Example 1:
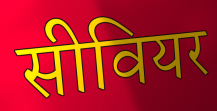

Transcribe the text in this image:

सीवियर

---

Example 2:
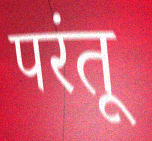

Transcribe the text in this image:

परंतू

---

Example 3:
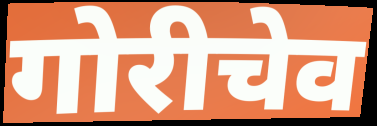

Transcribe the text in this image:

गोरीचेव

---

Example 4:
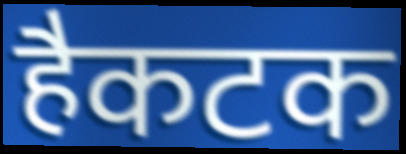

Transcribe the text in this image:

हैकटक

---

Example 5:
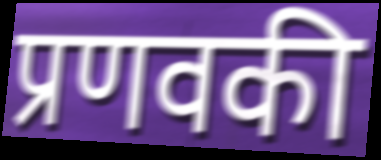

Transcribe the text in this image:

प्रणवकी